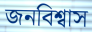
জনবিশ্বাস